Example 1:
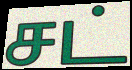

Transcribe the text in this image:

சட்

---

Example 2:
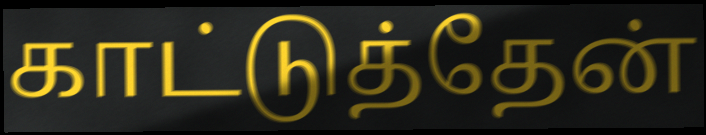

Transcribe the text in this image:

காட்டுத்தேன்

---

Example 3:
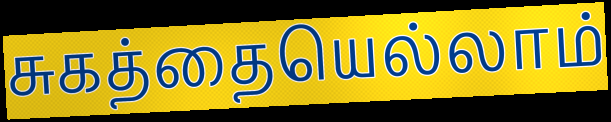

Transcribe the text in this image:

சுகத்தையெல்லாம்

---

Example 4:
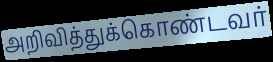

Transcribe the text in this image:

அறிவித்துக்கொண்டவர்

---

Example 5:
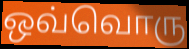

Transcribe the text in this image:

ஒவ்வொரு